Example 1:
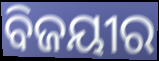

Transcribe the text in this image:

ବିଜୟୀର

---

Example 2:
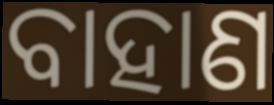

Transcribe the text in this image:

ବାହାଣ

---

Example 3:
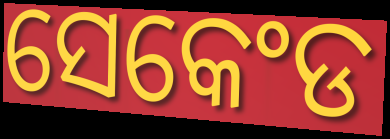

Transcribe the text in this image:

ସେକେଂଡ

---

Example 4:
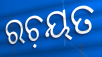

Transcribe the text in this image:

ରଚ଼ୟତ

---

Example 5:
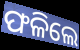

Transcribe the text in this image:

ଫଳିଲେ